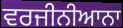
ਵਰਜੀਨੀਆਨਾ